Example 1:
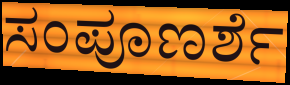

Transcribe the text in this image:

ಸಂಪೂಣರ್ಶೆ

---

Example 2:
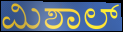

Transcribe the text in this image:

ಮಿಶಾಲ್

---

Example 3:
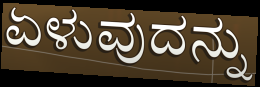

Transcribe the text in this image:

ಏಳುವುದನ್ನು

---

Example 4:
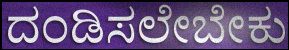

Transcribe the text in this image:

ದಂಡಿಸಲೇಬೇಕು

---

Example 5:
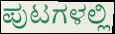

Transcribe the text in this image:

ಪುಟಗಳಲ್ಲಿ